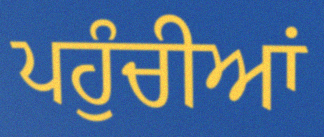
ਪਹੁੰਚੀਆਂ